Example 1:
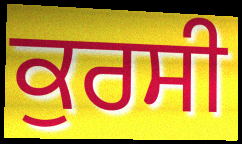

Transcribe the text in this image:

ਕੁਰਸੀ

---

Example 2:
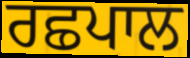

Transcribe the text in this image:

ਰਛਪਾਲ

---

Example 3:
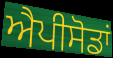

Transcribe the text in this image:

ਐਪੀਸੋਡਾਂ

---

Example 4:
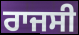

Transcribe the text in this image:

ਰਾਜਸੀ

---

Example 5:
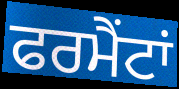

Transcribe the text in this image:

ਫਰਮੈਂਟਾਂ